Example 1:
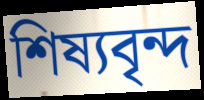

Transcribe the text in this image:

শিষ্যবৃন্দ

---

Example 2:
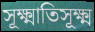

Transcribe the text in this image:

সূক্ষ্মাতিসূক্ষ্ম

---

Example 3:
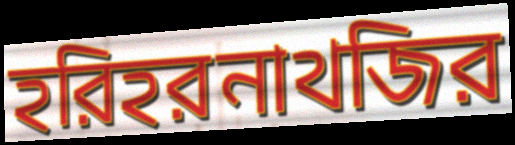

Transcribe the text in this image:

হরিহরনাথজির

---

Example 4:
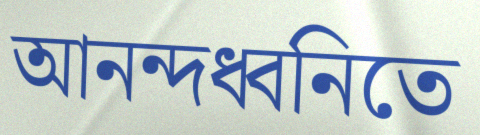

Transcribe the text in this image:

আনন্দধ্বনিতে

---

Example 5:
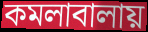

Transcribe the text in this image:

কমলাবালায়